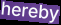
hereby